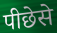
पीछेसे